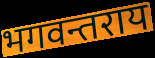
भगवन्तराय